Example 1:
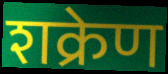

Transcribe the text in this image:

शक्रेण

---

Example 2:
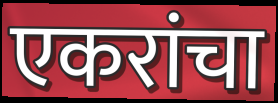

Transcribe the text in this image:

एकरांचा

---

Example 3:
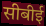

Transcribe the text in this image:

सीबीई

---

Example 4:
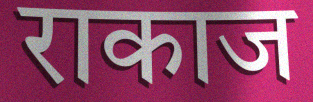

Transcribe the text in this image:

राकाज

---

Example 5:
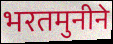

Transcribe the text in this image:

भरतमुनीने